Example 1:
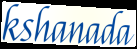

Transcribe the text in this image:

kshanada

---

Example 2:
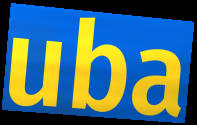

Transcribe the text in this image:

uba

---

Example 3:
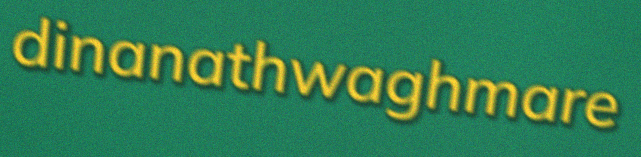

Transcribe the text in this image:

dinanathwaghmare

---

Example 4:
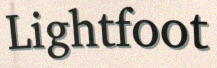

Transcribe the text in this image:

Lightfoot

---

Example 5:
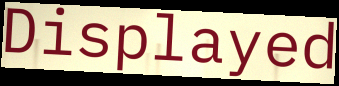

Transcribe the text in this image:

Displayed